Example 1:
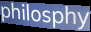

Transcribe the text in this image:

philosphy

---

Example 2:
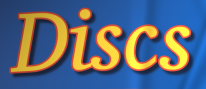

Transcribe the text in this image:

Discs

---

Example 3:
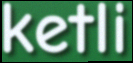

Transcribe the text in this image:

ketli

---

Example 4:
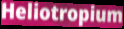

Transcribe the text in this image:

Heliotropium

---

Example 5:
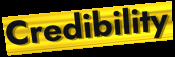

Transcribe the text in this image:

Credibility